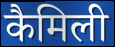
कैमिली